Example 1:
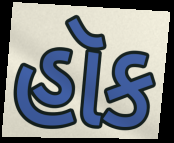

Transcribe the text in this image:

હૉક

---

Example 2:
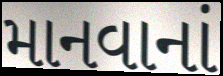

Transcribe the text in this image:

માનવાનાં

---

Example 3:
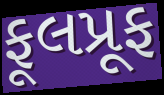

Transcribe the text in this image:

ફૂલપ્રૂફ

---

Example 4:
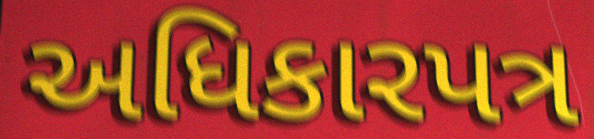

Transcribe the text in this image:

અધિકારપત્ર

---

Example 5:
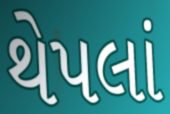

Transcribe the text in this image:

થેપલાં